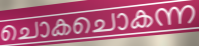
ചൊകചൊകന്ന